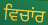
ਵਿਚਾਂਰ